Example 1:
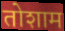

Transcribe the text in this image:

तोशाम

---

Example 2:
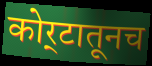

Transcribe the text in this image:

कोर्टातूनच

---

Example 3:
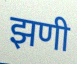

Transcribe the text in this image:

झणी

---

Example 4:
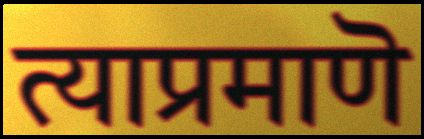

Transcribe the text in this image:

त्याप्रमाणॆ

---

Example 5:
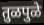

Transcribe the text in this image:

तुळपुळे